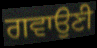
ਗਵਾਉਣੀ